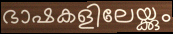
ഭാഷകളിലേയ്ക്കും